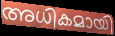
അധികമായി